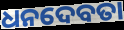
ଧନଦେବତା